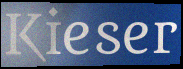
Kieser